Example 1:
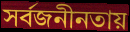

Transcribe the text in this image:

সর্বজনীনতায়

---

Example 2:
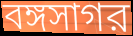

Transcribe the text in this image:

বঙ্গসাগর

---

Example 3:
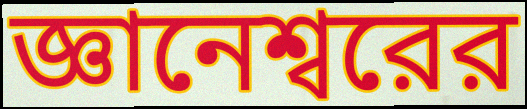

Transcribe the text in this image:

জ্ঞানেশ্বরের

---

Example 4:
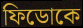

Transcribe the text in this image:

ফিডোকে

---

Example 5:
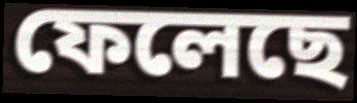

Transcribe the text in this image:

ফেলেছে